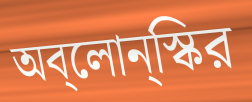
অব্‌লোন্‌স্কির